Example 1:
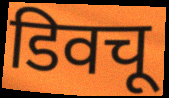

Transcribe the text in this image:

डिवचू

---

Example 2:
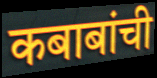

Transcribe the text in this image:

कबाबांची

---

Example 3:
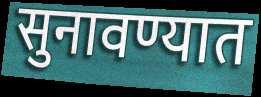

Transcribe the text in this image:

सुनावण्यात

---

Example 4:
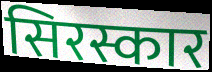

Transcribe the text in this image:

सिरस्कार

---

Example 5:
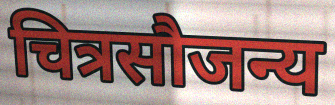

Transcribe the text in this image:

चित्रसौजन्य